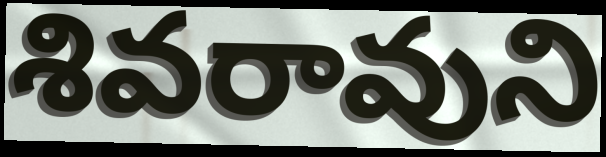
శివరావుని